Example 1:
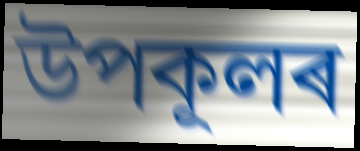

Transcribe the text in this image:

উপকূলৰ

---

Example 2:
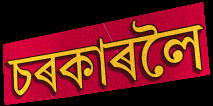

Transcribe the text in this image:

চৰকাৰলৈ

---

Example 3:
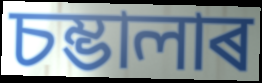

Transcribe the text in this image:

চম্ভালাৰ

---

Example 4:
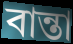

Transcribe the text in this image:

বান্তা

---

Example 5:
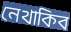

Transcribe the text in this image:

নেথাকিব